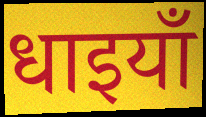
धाइयाँ